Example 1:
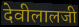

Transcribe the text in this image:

देवीलालजी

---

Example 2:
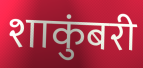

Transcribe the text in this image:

शाकुंबरी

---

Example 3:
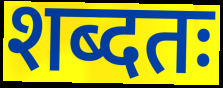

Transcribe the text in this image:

शब्दतः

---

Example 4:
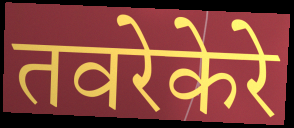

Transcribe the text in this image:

तवरेकेरे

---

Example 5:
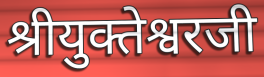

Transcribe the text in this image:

श्रीयुक्तेश्वरजी